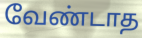
வேண்டாத